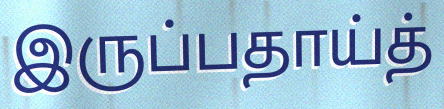
இருப்பதாய்த்